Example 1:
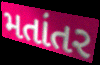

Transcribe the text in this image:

મતાંતર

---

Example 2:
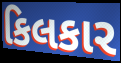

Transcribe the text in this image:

કિલકાર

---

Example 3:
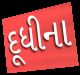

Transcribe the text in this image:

દૂધીના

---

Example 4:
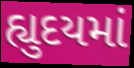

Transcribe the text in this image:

હ્યુદયમાં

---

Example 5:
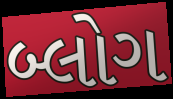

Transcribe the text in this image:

બ્લોગ